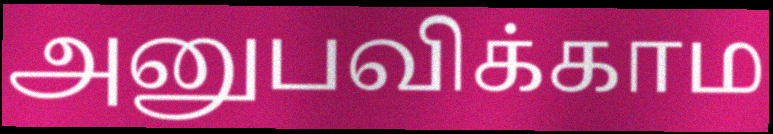
அனுபவிக்காம